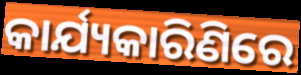
କାର୍ଯ୍ୟକାରିଣିରେ